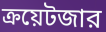
ক্রয়েটজার